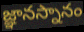
జ్ఞానస్నానం